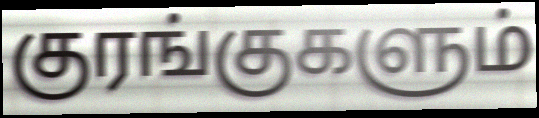
குரங்குகளும்